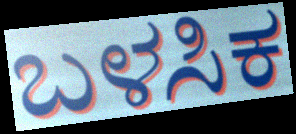
ಬಳಸಿಕ